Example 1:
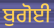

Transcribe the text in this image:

ਬੁਗੋਈ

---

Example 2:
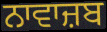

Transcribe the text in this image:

ਨਾਵਾਜ਼ਬ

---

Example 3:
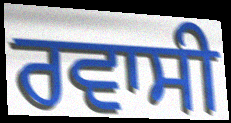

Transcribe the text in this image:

ਰਵਾਸੀ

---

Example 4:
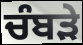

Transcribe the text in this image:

ਚੰਬੜੇ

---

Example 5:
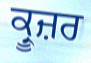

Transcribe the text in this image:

ਕ੍ਰੂਜ਼ਰ